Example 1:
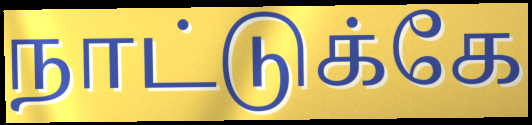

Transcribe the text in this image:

நாட்டுக்கே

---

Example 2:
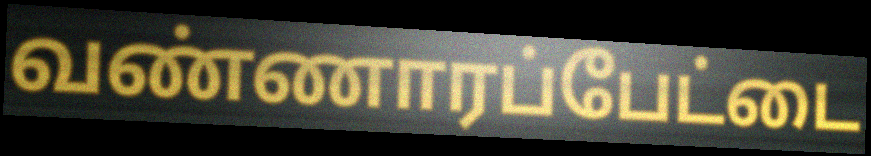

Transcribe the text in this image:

வண்ணாரப்பேட்டை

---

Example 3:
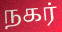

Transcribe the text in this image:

நகர்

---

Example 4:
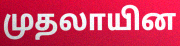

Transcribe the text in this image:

முதலாயின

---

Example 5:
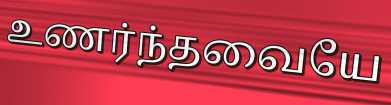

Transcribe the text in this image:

உணர்ந்தவையே